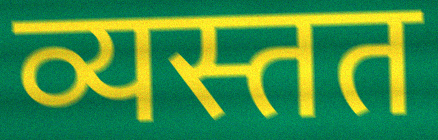
व्यस्तत